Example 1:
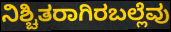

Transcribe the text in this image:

ನಿಶ್ಚಿತರಾಗಿರಬಲ್ಲೆವು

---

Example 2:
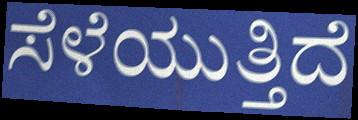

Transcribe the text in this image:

ಸೆಳೆಯುತ್ತಿದೆ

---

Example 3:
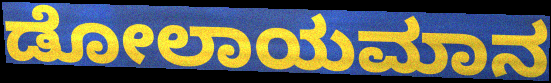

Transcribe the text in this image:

ಡೋಲಾಯಮಾನ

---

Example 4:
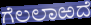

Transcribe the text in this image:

ಗೆಲಲಾಱದೆ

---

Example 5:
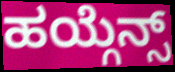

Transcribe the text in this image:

ಹಯ್ಗೆನ್ಸ್